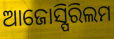
ଆଜୋସ୍ପିରିଲମ